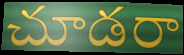
చూడరా